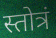
स्तोत्रं